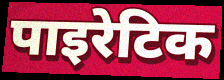
पाइरेटिक